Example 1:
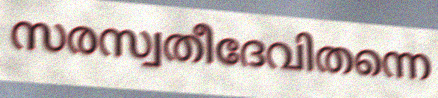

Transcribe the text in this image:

സരസ്വതീദേവിതന്നെ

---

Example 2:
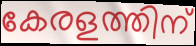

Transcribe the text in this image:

കേരളത്തിന്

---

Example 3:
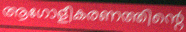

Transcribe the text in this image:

ആഗോളീകരണത്തിന്റെ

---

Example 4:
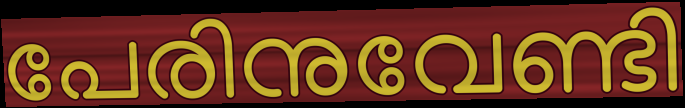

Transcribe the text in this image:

പേരിനുവേണ്ടി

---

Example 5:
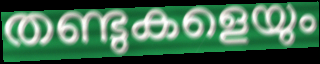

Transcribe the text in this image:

തണ്ടുകളെയും